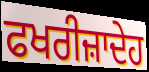
ਫਖਰੀਜ਼ਾਦੇਹ